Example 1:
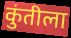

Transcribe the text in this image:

कुंतीला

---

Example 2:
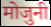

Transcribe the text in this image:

मोजुनी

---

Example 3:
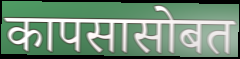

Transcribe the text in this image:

कापसासोबत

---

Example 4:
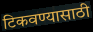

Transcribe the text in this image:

टिकवण्यासाठी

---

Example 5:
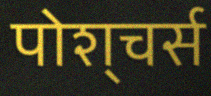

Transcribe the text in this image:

पोश्चर्स